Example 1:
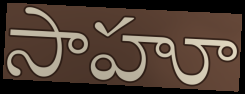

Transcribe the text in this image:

సాహూ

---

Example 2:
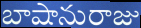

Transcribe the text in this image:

బాషానురాజు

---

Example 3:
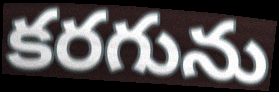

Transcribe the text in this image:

కరగును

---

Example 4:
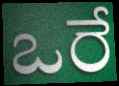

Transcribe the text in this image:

ఒరే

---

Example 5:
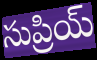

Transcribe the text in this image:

సుప్రియ్